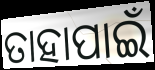
ତାହାପାଇଁ